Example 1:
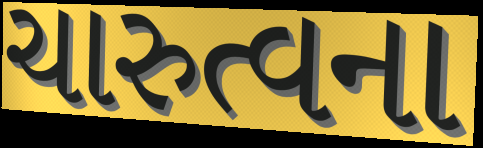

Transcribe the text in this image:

ચારુત્વના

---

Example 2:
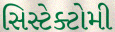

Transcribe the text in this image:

સિસ્ટેક્ટોમી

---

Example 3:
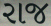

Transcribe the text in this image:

રાજ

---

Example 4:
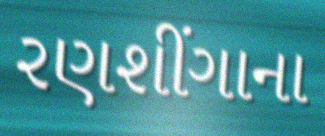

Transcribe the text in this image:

રણશીંગાના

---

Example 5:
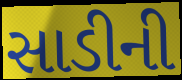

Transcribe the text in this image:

સાડીની